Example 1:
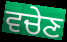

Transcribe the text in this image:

ਵਚੇਣ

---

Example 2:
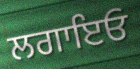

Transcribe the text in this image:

ਲਗਾਇਓ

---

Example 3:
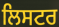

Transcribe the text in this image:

ਲਿਸਟਰ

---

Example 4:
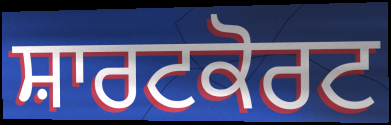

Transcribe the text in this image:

ਸ਼ਾਰਟਕੋਰਟ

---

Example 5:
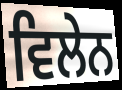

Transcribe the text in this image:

ਵਿਲੇਨ